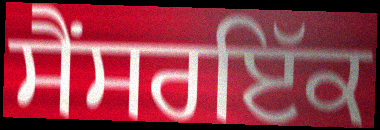
ਸੈਂਸਰਇੱਕ